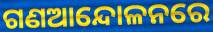
ଗଣଆନ୍ଦୋଳନରେ